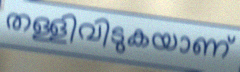
തള്ളിവിടുകയാണ്